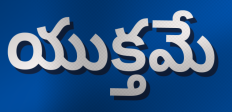
యుక్తమే